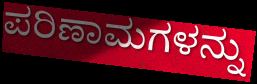
ಪರಿಣಾಮಗಳನ್ನು